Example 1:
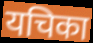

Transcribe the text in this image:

यचिका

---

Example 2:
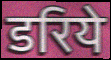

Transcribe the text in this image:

डरिये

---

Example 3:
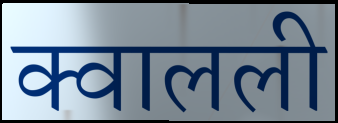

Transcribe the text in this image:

क्वालली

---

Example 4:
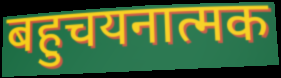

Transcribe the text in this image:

बहुचयनात्मक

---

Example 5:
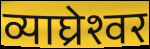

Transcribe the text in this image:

व्याघ्रेश्वर